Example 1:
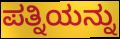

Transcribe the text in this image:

ಪತ್ನಿಯನ್ನು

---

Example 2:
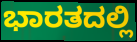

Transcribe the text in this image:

ಭಾರತದಲ್ಲಿ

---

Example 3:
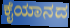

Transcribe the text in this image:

ಕೈಯಾನದ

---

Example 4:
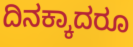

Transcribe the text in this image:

ದಿನಕ್ಕಾದರೂ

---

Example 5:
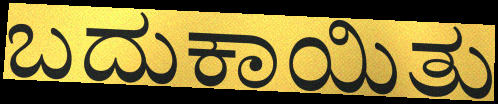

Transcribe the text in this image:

ಬದುಕಾಯಿತು